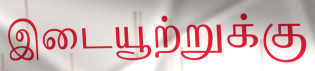
இடையூற்றுக்கு